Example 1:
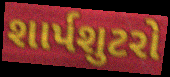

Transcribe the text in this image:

શાર્પશુટરો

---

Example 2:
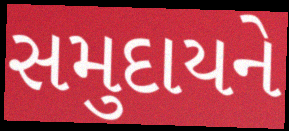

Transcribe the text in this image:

સમુદાયને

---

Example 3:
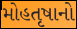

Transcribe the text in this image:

મોહતૃષાનો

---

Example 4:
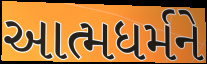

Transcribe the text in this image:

આત્મધર્મને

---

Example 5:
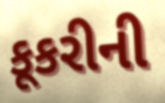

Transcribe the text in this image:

કૂકરીની